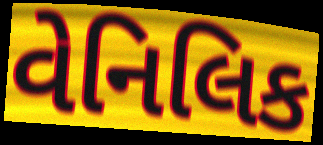
વેનિલિક